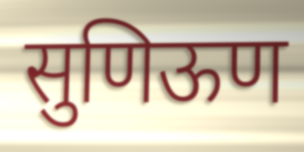
सुणिऊण